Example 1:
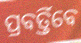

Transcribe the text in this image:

ପ୍ରବର୍ତ୍ତିବେ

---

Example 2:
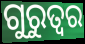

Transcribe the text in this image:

ଗୁରୁତ୍ବର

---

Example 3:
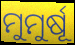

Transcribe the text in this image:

ମୁମୁର୍ଷୂ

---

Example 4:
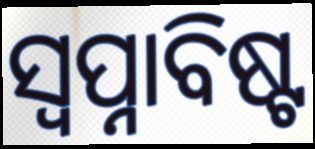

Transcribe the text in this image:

ସ୍ୱପ୍ନାବିଷ୍ଟ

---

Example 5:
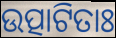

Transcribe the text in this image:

ଉତ୍ପାଟିତାଃ